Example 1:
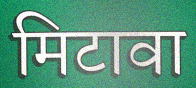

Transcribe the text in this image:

मिटावा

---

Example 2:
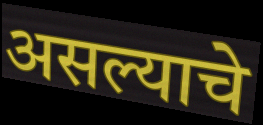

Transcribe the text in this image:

असल्याचे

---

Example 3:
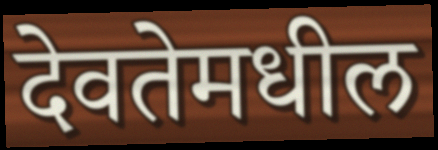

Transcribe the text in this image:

देवतेमधील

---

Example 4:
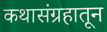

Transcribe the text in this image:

कथासंग्रहातून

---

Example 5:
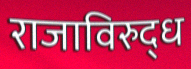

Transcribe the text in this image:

राजाविरुद्ध